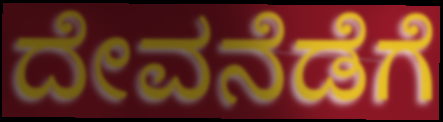
ದೇವನೆಡೆಗೆ